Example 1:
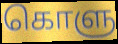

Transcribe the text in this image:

கொளு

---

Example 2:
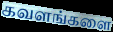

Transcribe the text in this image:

கவளங்களை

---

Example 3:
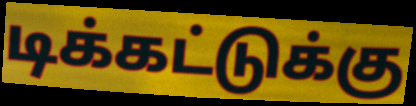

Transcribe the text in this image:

டிக்கட்டுக்கு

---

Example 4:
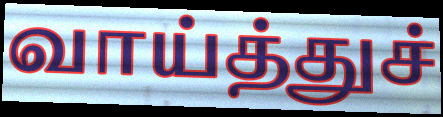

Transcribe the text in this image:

வாய்த்துச்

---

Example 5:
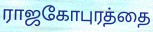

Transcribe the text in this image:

ராஜகோபுரத்தை